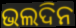
ଭଲଦିନ